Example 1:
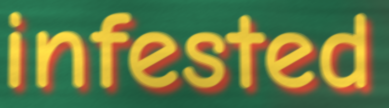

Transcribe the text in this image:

infested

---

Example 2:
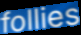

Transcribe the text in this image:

follies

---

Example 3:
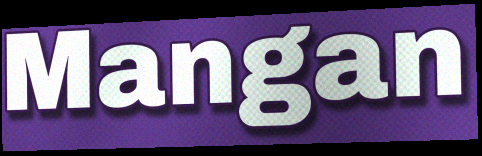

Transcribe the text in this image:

Mangan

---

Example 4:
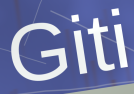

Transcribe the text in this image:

Giti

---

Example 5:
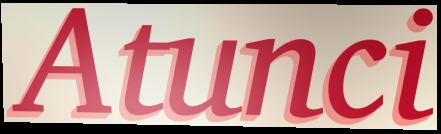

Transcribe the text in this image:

Atunci